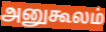
அனுகூலம்